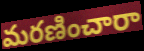
మరణించారా